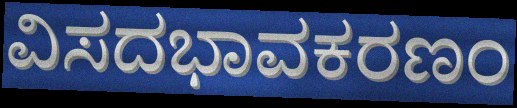
ವಿಸದಭಾವಕರಣಂ